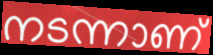
നടന്നാണ്